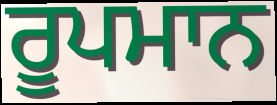
ਰੂਪਮਾਨ